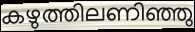
കഴുത്തിലണിഞ്ഞു